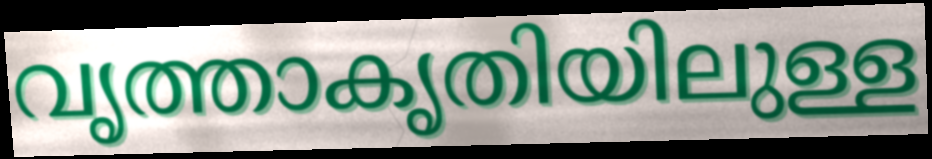
വൃത്താകൃതിയിലുള്ള